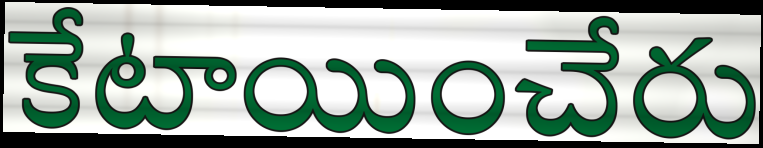
కేటాయించేరు